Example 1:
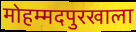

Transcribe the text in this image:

मोहम्मदपुरखाला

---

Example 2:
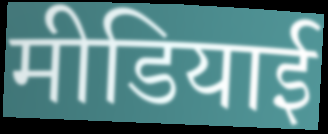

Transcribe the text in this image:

मीडियाई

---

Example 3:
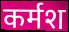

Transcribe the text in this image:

कर्मश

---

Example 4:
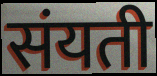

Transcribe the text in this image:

संयती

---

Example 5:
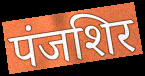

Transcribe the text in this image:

पंजशिर